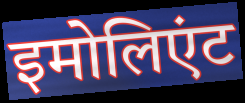
इमोलिएंट